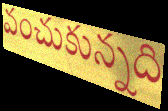
వంచుకున్నది